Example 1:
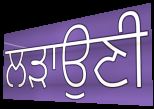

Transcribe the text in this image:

ਲੜਾਉਣੀ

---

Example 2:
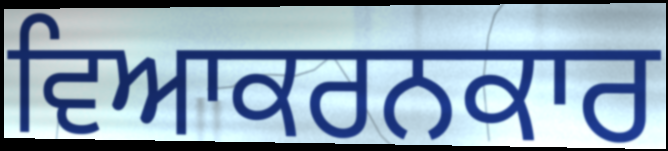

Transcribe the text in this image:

ਵਿਆਕਰਨਕਾਰ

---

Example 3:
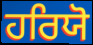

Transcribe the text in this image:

ਹਰਿਯੋ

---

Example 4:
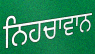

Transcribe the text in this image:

ਨਿਹਚਾਵਾਨ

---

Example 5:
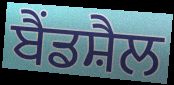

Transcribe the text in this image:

ਬੈਂਡਸ਼ੈਲ